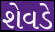
શેવડે